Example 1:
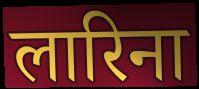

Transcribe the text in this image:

लारिना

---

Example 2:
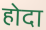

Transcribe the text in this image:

होदा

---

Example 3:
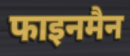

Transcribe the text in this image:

फाइनमैन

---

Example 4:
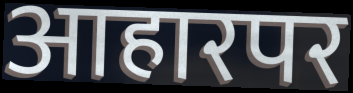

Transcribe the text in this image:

आहारपर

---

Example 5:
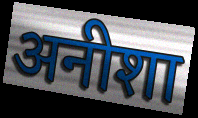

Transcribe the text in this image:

अनीशा